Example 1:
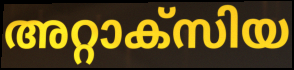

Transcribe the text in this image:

അറ്റാക്സിയ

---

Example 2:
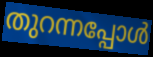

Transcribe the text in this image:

തുറന്നപ്പോൾ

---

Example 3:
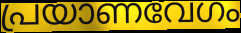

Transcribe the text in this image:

പ്രയാണവേഗം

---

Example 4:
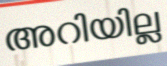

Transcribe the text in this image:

അറിയില്ല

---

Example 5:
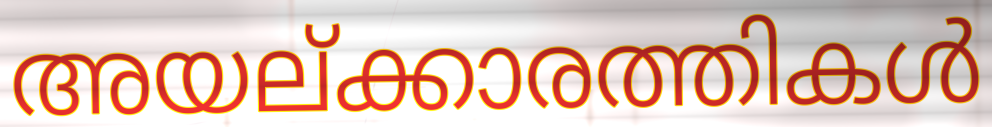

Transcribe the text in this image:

അയല്ക്കാരത്തികൾ